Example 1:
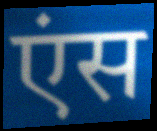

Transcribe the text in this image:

एंस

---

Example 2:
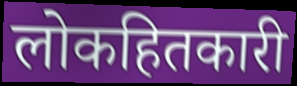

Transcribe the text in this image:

लोकहितकारी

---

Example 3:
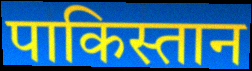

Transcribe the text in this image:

पाकिस्तान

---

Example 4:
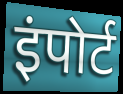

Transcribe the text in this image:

इंपोर्ट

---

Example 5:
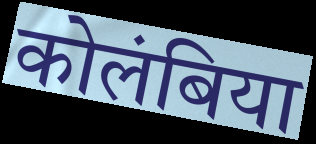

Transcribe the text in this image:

कोलंबिया